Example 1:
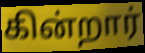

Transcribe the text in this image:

கின்றார்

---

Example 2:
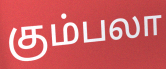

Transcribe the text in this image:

கும்பலா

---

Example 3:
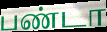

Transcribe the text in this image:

பண்டா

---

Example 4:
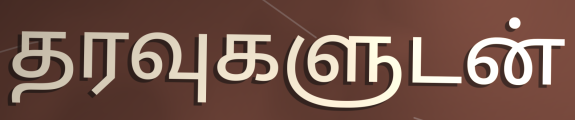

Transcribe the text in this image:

தரவுகளுடன்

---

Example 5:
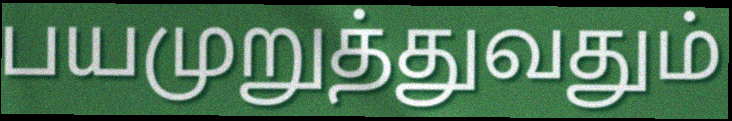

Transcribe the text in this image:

பயமுறுத்துவதும்